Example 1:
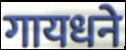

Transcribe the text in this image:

गायधने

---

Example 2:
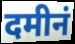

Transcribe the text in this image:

दमीनं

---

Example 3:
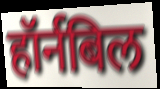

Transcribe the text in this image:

हॉर्नबिल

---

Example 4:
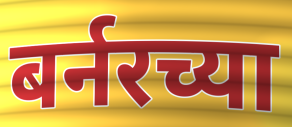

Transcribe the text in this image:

बर्नरच्या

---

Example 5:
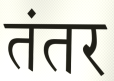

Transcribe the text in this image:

तंतर